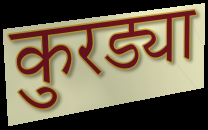
कुरड्या